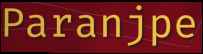
Paranjpe